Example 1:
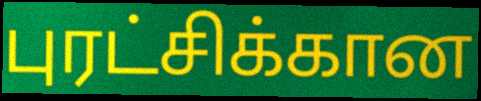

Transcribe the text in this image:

புரட்சிக்கான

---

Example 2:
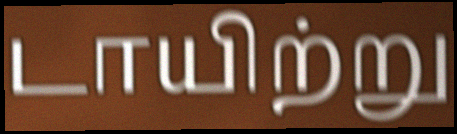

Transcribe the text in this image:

டாயிற்று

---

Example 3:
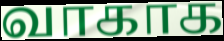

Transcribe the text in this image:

வாகாக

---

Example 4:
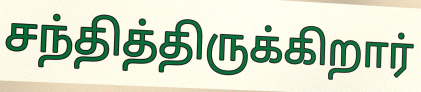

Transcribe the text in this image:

சந்தித்திருக்கிறார்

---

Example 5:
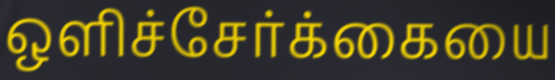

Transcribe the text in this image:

ஒளிச்சேர்க்கையை